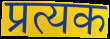
प्रत्यक